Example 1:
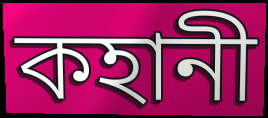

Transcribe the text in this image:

কহানী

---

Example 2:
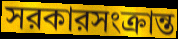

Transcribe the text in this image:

সরকারসংক্রান্ত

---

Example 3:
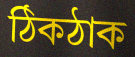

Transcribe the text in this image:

ঠিকঠাক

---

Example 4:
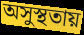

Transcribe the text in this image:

অসুস্থতায়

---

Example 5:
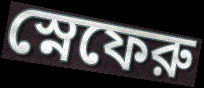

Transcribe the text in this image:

স্নেফেরু